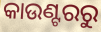
କାଉଣ୍ଟରରୁ